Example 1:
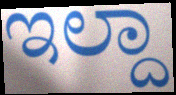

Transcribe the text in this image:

ಇಲ್ದಾ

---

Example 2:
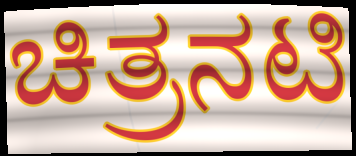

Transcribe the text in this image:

ಚಿತ್ರನಟಿ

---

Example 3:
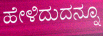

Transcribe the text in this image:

ಹೇಳಿದುದನ್ನೂ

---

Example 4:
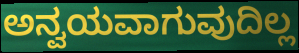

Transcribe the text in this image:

ಅನ್ವಯವಾಗುವುದಿಲ್ಲ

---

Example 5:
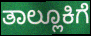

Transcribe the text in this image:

ತಾಲ್ಲೂಕಿಗೆ